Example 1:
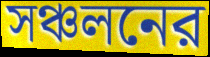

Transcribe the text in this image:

সঞ্চলনের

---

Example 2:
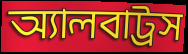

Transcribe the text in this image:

অ্যালবাট্রস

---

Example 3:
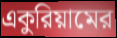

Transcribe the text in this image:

একুরিয়ামের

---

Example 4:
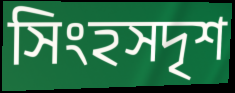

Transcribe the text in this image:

সিংহসদৃশ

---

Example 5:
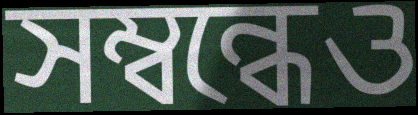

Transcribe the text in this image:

সম্বন্ধেও